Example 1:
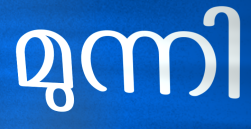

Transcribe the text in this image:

മുന്നി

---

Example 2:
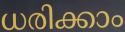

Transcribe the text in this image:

ധരിക്കാം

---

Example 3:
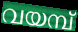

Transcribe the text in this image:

വയമ്പ്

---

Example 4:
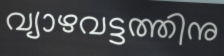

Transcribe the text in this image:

വ്യാഴവട്ടത്തിനു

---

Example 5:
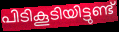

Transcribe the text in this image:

പിടികൂടിയിട്ടുണ്ട്